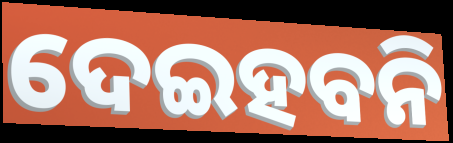
ଦେଇହବନି